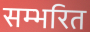
सम्भरित